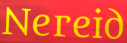
Nereid